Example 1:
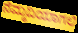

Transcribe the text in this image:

ನೆಮ್ಮದಿಯಾಗಲಿ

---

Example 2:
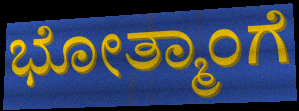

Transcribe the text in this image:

ಭೋತ್ಮಾಂಗೆ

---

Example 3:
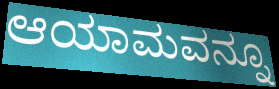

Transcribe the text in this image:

ಆಯಾಮವನ್ನೂ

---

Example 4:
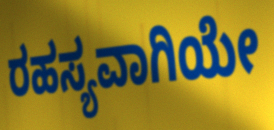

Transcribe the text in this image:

ರಹಸ್ಯವಾಗಿಯೇ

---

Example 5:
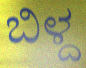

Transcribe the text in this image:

ಬಿಳ್ದ